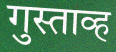
गुस्ताव्ह